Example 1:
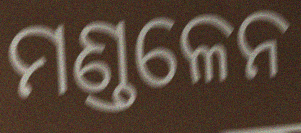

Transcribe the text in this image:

ମଣ୍ଡଳେନ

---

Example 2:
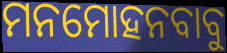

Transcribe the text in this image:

ମନମୋହନବାବୁ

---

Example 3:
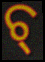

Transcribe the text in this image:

ଚ୍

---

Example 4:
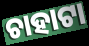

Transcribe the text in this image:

ଚାହାଟା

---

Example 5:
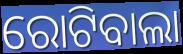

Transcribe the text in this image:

ରୋଟିବାଲା